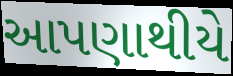
આપણાથીયે